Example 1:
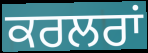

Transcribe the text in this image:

ਕਰਲਰਾਂ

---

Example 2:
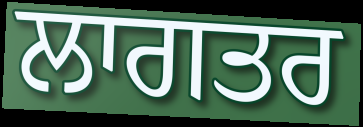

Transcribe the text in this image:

ਲਾਗਤਰ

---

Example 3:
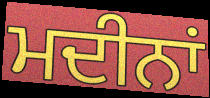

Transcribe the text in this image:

ਮਦੀਨਾਂ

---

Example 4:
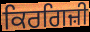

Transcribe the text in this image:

ਕਿਰਗਿਜ਼ੀ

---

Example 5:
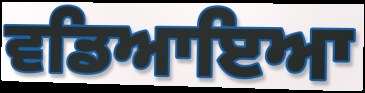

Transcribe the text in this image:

ਵਡਿਆਇਆ